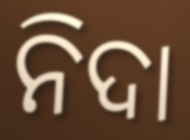
ନିଦା